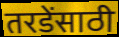
तरडेंसाठी